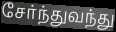
சேர்ந்துவந்து